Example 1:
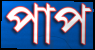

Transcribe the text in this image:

পাপ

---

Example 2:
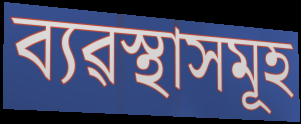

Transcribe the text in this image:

ব্যৱস্থাসমূহ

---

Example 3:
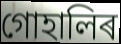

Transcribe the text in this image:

গোহালিৰ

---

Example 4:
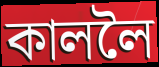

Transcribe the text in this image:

কাললৈ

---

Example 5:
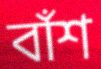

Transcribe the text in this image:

বাঁশ